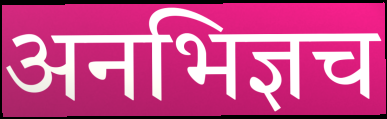
अनभिज्ञच